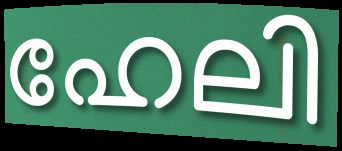
ഹേലി